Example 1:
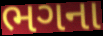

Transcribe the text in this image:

ભગના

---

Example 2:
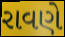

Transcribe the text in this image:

રાવણે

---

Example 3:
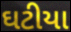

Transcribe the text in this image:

ઘટીયા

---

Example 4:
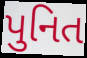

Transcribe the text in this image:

પુનિત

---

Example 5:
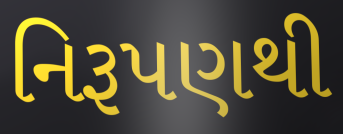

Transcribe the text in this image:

નિરૂપણથી